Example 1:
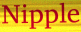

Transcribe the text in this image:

Nipple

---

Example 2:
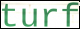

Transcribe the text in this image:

turf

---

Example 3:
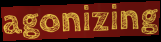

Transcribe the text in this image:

agonizing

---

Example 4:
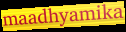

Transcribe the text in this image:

maadhyamika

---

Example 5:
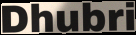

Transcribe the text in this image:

Dhubri